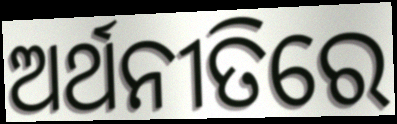
ଅର୍ଥନୀତିରେ